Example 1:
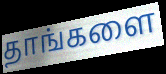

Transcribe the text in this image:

தாங்களை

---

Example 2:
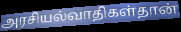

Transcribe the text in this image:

அரசியல்வாதிகள்தான்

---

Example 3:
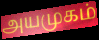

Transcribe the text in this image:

அயமுகம்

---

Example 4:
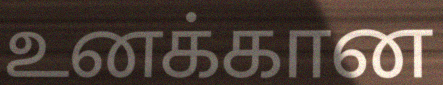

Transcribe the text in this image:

உனக்கான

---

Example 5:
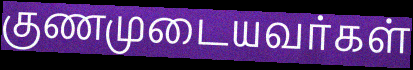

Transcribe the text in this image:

குணமுடையவர்கள்